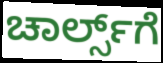
ಚಾರ್ಲ್ಸ್‌ಗೆ